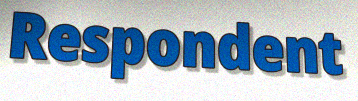
Respondent